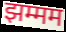
झम्मम